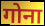
गोना